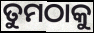
ତୁମଠାକୁ